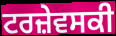
ਟਰਜ਼ੇਵਸਕੀ